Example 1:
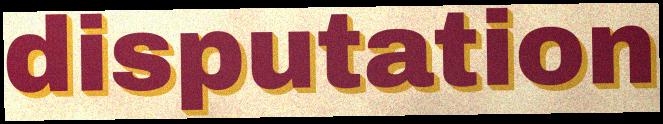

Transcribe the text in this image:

disputation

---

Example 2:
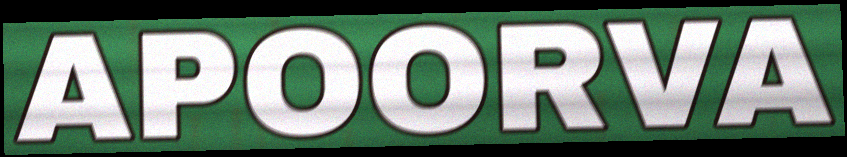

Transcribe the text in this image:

APOORVA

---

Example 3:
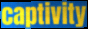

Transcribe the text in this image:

captivity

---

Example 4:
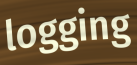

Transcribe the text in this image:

logging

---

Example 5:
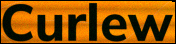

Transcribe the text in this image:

Curlew